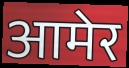
आमेर